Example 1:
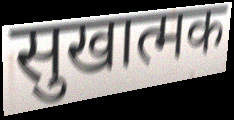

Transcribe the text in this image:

सुखात्मक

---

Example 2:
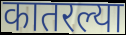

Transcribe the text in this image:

कातरल्या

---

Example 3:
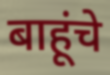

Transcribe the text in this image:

बाहूंचे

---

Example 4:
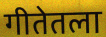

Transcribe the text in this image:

गीतेतला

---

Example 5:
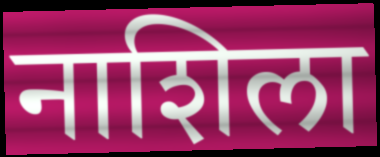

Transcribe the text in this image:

नाशिला